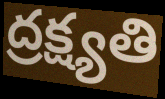
ద్రక్ష్యతి